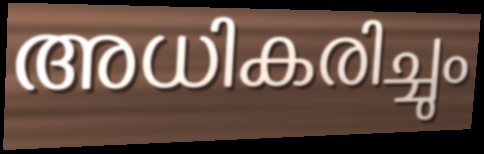
അധികരിച്ചും